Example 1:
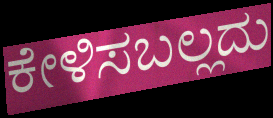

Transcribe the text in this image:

ಕೇಳಿಸಬಲ್ಲದು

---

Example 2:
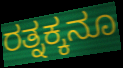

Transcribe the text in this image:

ರತ್ನಕ್ಕನೂ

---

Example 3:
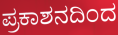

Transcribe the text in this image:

ಪ್ರಕಾಶನದಿಂದ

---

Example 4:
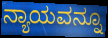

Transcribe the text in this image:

ನ್ಯಾಯವನ್ನೂ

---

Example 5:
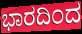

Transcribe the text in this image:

ಭಾರದಿಂದ